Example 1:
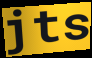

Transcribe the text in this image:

jts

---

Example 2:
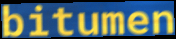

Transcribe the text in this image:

bitumen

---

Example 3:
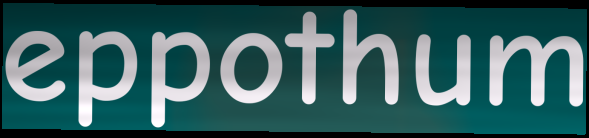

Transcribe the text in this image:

eppothum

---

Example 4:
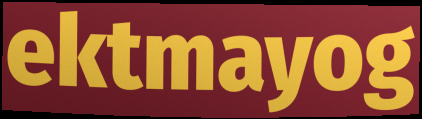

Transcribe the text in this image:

ektmayog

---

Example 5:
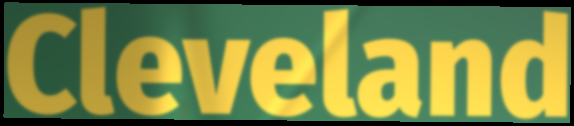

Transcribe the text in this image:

Cleveland